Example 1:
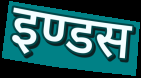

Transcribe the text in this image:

इण्डस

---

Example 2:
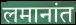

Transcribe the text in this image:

लमानांत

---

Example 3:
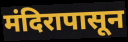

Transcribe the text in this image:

मंदिरापासून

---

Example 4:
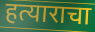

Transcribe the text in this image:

हत्याराचा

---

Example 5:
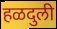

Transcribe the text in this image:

हळदुली